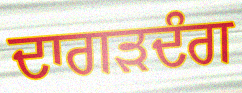
ਦਾਗੜਦੰਗ